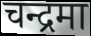
चन्द्रमा